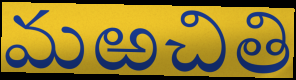
మఱచితి